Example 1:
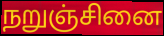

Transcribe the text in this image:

நறுஞ்சினை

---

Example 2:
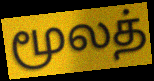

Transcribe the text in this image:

மூலத்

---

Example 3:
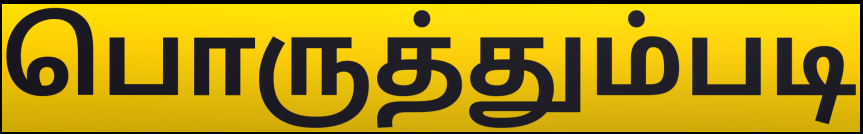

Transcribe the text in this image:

பொருத்தும்படி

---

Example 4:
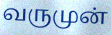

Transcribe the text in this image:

வருமுன்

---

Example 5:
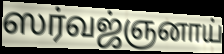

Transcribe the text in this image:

ஸர்வஜ்ஞனாய்